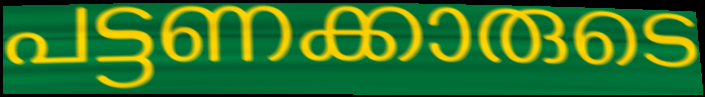
പട്ടണക്കാരുടെ